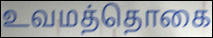
உவமத்தொகை